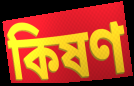
কিষণ